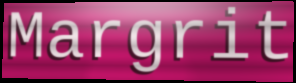
Margrit